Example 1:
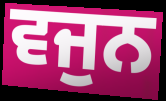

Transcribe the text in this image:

ਵਜੁਨ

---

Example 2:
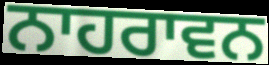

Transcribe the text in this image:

ਨਾਹਰਾਵਨ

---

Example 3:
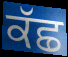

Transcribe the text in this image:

ਕੱਛ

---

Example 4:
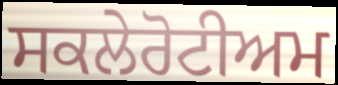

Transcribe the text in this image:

ਸਕਲੇਰੋਟੀਅਮ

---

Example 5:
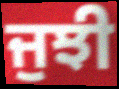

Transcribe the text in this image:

ਜੁਝੀ